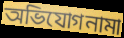
অভিযোগনামা